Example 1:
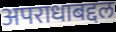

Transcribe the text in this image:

अपराधाबद्दल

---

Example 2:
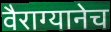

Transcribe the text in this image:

वैराग्यानेच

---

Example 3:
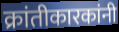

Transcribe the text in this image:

क्रांतीकारकांनी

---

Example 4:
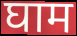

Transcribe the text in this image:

घाम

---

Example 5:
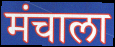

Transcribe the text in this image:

मंचाला